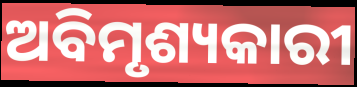
ଅବିମୃଶ୍ୟକାରୀ